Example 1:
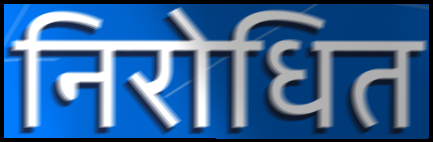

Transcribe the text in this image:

निरोधित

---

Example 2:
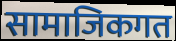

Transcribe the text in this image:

सामाजिकगत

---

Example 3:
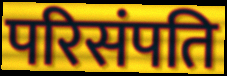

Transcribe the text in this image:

परिसंपति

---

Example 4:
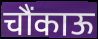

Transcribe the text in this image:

चौंकाऊ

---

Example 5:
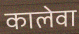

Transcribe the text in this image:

कालेवा